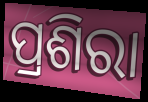
ପ୍ରଶିରା